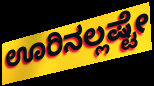
ಊರಿನಲ್ಲಷ್ಟೇ